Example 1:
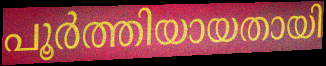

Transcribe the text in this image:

പൂർത്തിയായതായി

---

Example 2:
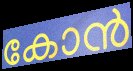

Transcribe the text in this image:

കോൻ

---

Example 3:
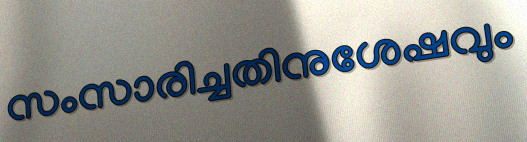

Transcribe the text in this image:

സംസാരിച്ചതിനുശേഷവും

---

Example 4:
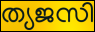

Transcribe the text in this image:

ത്യജസി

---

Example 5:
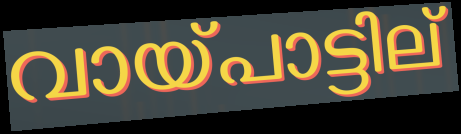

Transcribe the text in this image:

വായ്പാട്ടില്